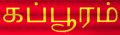
கப்பூரம்